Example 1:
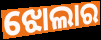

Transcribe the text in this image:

ଝୋଲାର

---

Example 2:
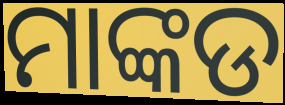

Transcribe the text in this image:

ମାଙ୍କଡ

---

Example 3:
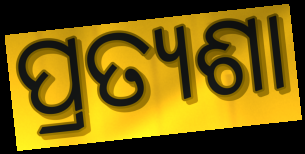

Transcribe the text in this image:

ପ୍ରତ୍ୟଶା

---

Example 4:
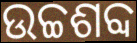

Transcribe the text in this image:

ଉଚ୍ଚଶବ୍ଦ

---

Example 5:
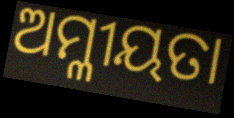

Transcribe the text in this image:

ଅମ୍ଳୀୟତା